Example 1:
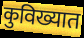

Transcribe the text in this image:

कुविख्यात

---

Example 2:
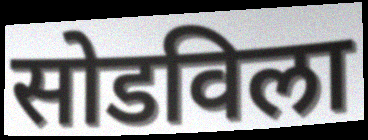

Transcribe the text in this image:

सोडविला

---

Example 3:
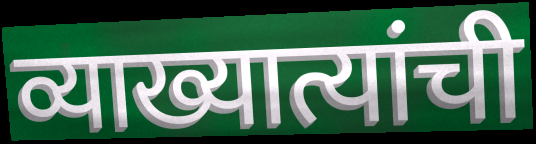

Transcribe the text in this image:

व्याख्यात्यांची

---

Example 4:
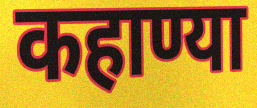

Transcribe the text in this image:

कहाण्या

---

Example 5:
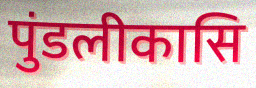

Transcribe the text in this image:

पुंडलीकासि